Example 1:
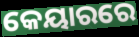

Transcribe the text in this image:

କେୟାରରେ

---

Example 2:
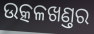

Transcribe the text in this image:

ଉତ୍କଳଖଣ୍ତର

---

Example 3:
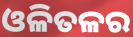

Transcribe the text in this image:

ଓଳିତଳର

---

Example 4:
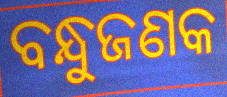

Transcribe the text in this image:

ବନ୍ଧୁଜଣକ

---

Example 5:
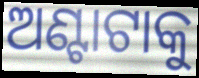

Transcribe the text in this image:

ଅଣ୍ଟାଟାକୁ